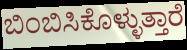
ಬಿಂಬಿಸಿಕೊಳ್ಳುತ್ತಾರೆ